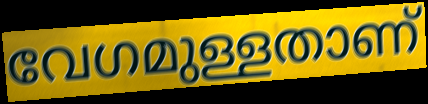
വേഗമുള്ളതാണ്